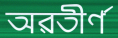
অৱতীৰ্ণ